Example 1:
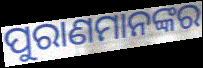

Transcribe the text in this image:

ପୁରାଣମାନଙ୍କର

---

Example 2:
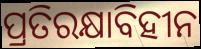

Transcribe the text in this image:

ପ୍ରତିରକ୍ଷାବିହୀନ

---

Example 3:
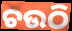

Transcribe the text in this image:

ଚଉଠି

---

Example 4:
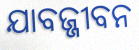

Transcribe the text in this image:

ଯାବଜ୍ଜୀବନ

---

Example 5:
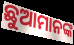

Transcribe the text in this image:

ଛୁଆମାନଙ୍କ